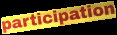
participation